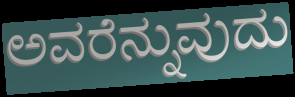
ಅವರೆನ್ನುವುದು